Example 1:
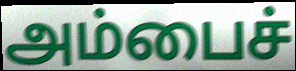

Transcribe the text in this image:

அம்பைச்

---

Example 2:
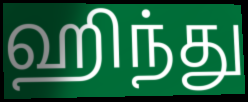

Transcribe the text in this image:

ஹிந்து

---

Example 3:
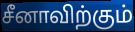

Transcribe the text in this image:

சீனாவிற்கும்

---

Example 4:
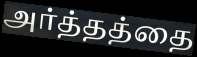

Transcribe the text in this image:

அர்த்தத்தை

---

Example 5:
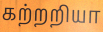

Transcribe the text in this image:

கற்றறியா